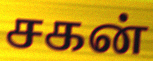
சகன்